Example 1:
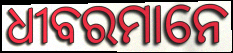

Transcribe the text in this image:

ଧୀବରମାନେ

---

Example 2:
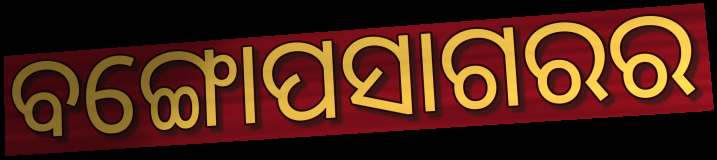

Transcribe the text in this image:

ବଙ୍ଗୋପସାଗରର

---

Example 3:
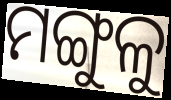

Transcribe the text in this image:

ମଙ୍ଗୁଳୁ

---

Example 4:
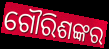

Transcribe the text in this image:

ଗୌରିଶଙ୍କର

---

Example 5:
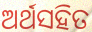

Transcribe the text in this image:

ଅର୍ଥସହିତ